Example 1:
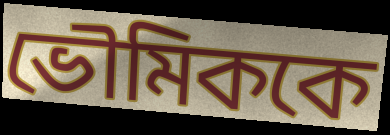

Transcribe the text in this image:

ভৌমিককে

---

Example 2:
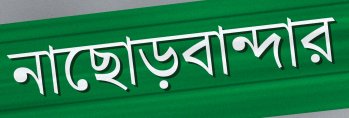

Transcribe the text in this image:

নাছোড়বান্দার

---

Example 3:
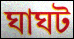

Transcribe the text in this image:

ঘাঘট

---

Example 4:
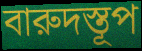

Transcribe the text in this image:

বারুদস্তূপ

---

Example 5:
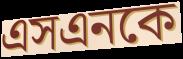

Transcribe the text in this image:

এসএনকে